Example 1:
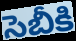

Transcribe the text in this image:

సెబీకి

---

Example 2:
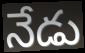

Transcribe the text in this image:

నేడు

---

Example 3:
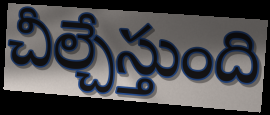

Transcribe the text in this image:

చీల్చేస్తుంది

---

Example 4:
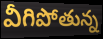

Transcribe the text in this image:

వీగిపోతున్న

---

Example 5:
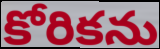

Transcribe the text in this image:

కోరికను